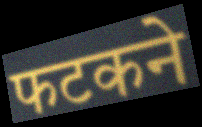
फटकने